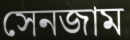
সেনজাম